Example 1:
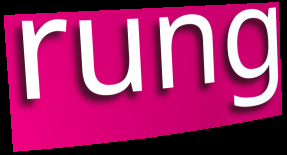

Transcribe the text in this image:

rung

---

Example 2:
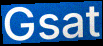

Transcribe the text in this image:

Gsat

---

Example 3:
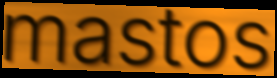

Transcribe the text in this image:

mastos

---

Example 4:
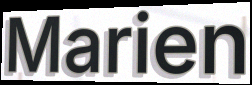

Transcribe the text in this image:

Marien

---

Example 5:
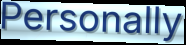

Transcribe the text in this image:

Personally